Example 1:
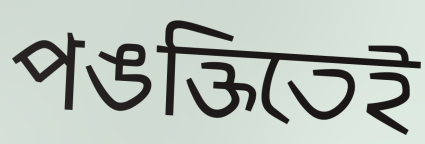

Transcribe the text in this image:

পঙক্তিতেই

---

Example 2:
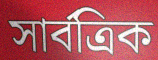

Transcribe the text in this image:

সার্বত্রিক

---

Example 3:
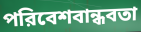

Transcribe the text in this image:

পরিবেশবান্ধবতা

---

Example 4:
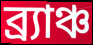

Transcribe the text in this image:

ব্র্যাঞ্চ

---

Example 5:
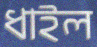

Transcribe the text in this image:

ধাইল